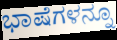
ಭಾಷೆಗಳನ್ನೂ